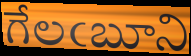
గేలఁబూని